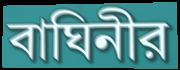
বাঘিনীর